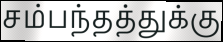
சம்பந்தத்துக்கு